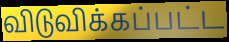
விடுவிக்கப்பட்ட